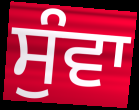
ਸੁੰਵਾ